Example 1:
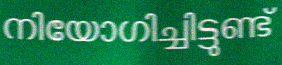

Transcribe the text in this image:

നിയോഗിച്ചിട്ടുണ്ട്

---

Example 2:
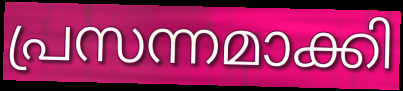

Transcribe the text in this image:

പ്രസന്നമാക്കി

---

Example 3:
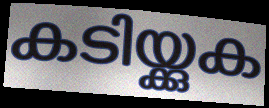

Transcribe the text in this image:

കടിയ്ക്കുക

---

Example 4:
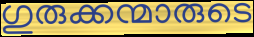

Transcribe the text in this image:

ഗുരുക്കന്മാരുടെ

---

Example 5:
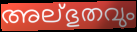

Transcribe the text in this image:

അല്ഭുതവും